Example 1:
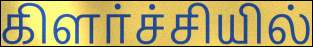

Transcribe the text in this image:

கிளர்ச்சியில்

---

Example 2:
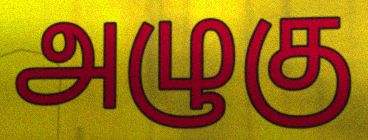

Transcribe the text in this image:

அழுகு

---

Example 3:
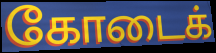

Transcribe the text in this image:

கோடைக்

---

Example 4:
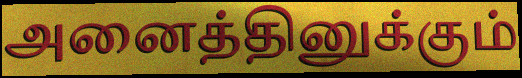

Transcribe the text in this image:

அனைத்தினுக்கும்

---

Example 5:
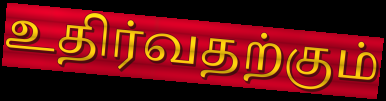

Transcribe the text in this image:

உதிர்வதற்கும்